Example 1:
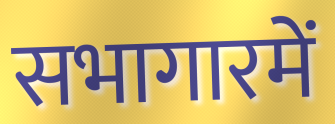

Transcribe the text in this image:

सभागारमें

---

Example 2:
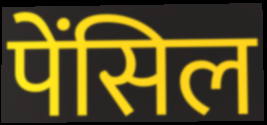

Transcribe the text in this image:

पेंसिल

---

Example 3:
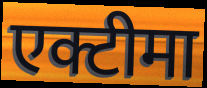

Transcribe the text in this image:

एक्टीमा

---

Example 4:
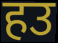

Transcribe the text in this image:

हउ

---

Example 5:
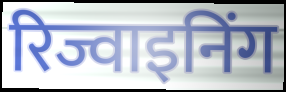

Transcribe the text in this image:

रिज्वाइनिंग